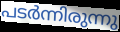
പടർന്നിരുന്നു